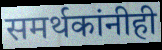
समर्थकांनीही